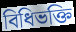
বিধিভক্তি